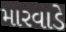
મારવાડે